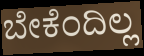
ಬೇಕೆಂದಿಲ್ಲ